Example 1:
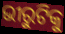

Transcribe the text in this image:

ଭୀରୁଟିକୁ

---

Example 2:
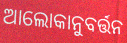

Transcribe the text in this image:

ଆଲୋକାନୁବର୍ତ୍ତନ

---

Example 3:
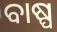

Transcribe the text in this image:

ବାଷ୍ପ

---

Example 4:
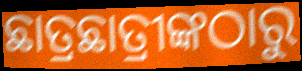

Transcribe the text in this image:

ଛାତ୍ରଛାତ୍ରୀଙ୍କଠାରୁ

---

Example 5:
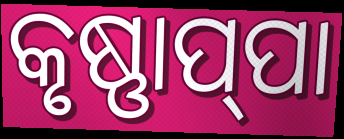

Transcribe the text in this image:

କୃଷ୍ଣାପ୍‌ପା